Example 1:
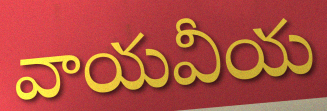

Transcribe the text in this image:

వాయవీయ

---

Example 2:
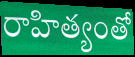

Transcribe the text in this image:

రాహిత్యంతో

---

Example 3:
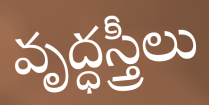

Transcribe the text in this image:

వృద్ధస్త్రీలు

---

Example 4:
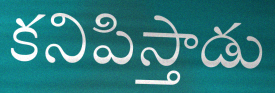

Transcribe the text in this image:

కనిపిస్తాడు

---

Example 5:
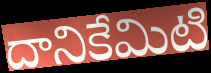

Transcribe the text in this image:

దానికేమిటి